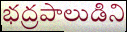
భద్రపాలుడిని